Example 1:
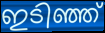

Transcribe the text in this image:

ഇടിഞ്ഞ്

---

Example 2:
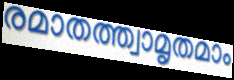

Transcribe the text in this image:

രമാതത്ത്വാമൃതമാം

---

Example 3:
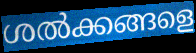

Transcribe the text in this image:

ശൽക്കങ്ങളെ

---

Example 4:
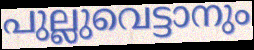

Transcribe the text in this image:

പുല്ലുവെട്ടാനും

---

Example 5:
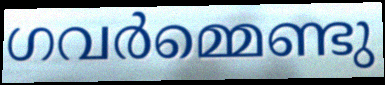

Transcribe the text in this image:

ഗവർമ്മെണ്ടു